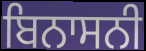
ਬਿਨਾਸਨੀ